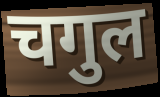
चगुल